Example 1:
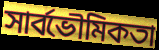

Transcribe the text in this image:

সার্বভৌমিকতা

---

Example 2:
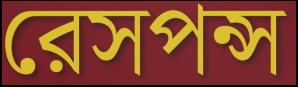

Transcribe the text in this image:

রেসপন্স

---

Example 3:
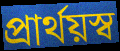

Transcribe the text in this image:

প্রার্থয়স্ব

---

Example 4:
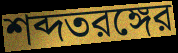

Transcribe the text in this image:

শব্দতরঙ্গের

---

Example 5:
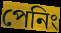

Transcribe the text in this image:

পেনিং